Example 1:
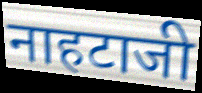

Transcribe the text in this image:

नाहटाजी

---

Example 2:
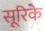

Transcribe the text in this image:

सूरिके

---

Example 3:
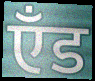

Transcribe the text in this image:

एँड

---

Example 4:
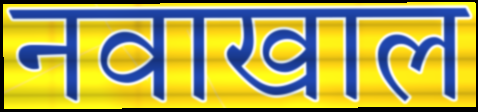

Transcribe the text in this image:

नवाखाल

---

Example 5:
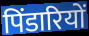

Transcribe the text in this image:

पिंडारियों